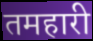
तमहारी